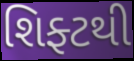
શિફ્ટથી